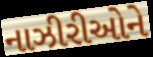
નાઝીરીઓને